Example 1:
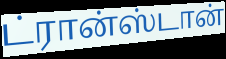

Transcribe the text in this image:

ட்ரான்ஸ்டான்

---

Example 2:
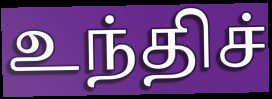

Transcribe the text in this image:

உந்திச்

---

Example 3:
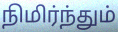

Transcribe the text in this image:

நிமிர்ந்தும்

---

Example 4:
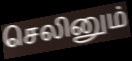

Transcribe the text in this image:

செலினும்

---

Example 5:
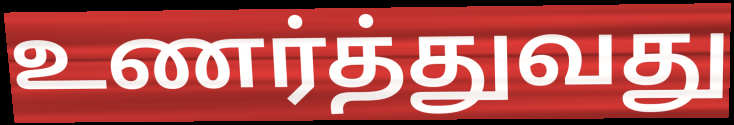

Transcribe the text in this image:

உணர்த்துவது